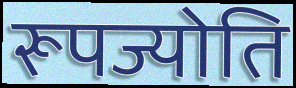
रूपज्योति